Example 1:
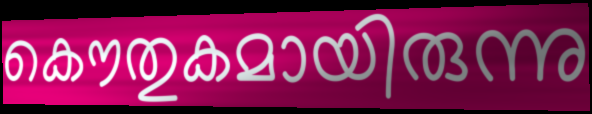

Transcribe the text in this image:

കൌതുകമായിരുന്നു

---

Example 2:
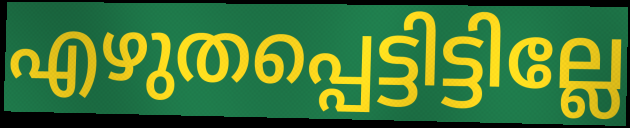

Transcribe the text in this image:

എഴുതപ്പെട്ടിട്ടില്ലേ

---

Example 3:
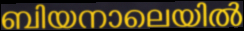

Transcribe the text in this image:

ബിയനാലെയിൽ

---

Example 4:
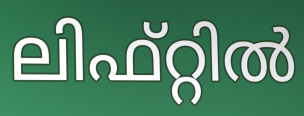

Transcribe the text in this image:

ലിഫ്റ്റിൽ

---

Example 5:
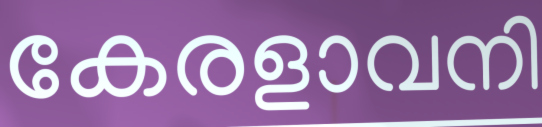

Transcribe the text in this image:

കേരളാവനി